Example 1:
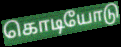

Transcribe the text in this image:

கொடியோடு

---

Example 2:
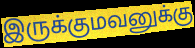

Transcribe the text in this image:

இருக்குமவனுக்கு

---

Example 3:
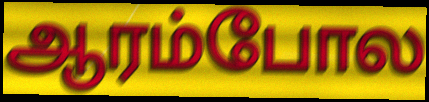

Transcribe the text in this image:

ஆரம்போல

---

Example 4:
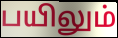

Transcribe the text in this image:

பயிலும்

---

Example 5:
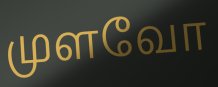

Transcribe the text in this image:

முளவோ